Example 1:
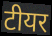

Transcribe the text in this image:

टीयर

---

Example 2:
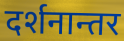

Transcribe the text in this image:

दर्शनान्तर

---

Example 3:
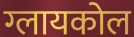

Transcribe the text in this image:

ग्लायकोल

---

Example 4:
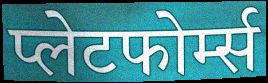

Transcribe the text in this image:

प्लेटफोर्म्स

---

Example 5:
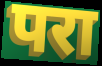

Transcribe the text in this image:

परा